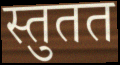
स्तुतत